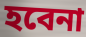
হবেনা